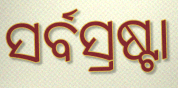
ସର୍ବସ୍ରଷ୍ଟା